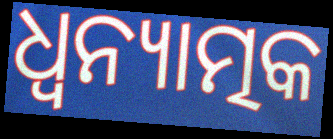
ଧ୍ୱନ୍ୟାତ୍ମକ